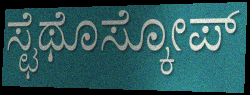
ಸ್ಟೆಥೊಸ್ಕೋಪ್